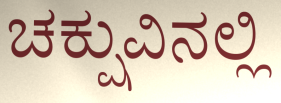
ಚಕ್ಷುವಿನಲ್ಲಿ